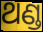
ଥଣ୍ଡ